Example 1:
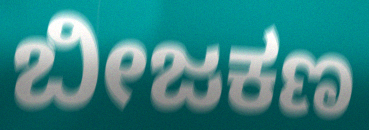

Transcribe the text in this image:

ಬೀಜಕಣ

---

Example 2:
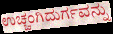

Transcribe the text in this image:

ಉಚ್ಚಂಗಿದುರ್ಗವನ್ನು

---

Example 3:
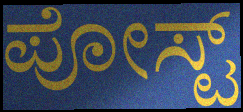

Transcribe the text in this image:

ಪೋಸ್ಟ್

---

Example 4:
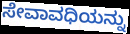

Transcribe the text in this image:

ಸೇವಾವಧಿಯನ್ನು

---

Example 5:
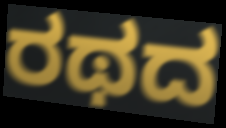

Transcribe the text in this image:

ರಥದ